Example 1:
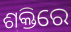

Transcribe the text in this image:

ଶକ୍ତିରେ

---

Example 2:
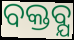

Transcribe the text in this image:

ବକ୍ତବ୍ଯ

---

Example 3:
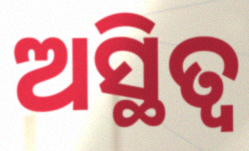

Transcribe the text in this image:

ଅସ୍ଥିତ୍ୱ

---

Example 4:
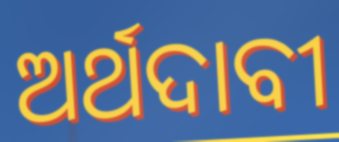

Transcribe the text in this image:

ଅର୍ଥଦାବୀ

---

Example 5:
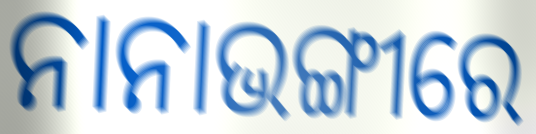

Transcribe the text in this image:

ନାନାଭଙ୍ଗୀରେ